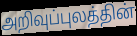
அறிவுப்புலத்தின்